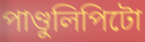
পাণ্ডুলিপিটো